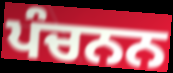
ਪੰਚਨਨ